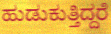
ಹುಡುಕುತ್ತಿದ್ದರೆ